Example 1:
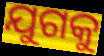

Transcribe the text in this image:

ଯୁଗକୁ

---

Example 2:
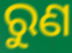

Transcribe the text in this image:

ରୁଣ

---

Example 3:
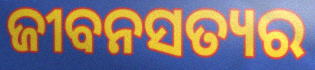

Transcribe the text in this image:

ଜୀବନସତ୍ୟର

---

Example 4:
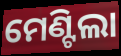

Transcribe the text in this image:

ମେଣ୍ଟିଲା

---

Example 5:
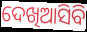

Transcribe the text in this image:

ଦେଖିଆସିବି